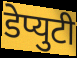
डेप्युटी